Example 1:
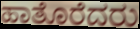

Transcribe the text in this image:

ಹಾತೊರೆದರು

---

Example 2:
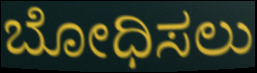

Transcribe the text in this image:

ಬೋಧಿಸಲು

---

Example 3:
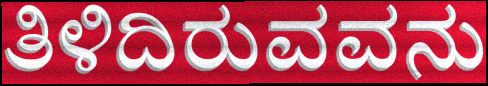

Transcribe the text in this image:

ತಿಳಿದಿರುವವನು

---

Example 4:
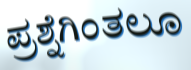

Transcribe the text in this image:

ಪ್ರಶ್ನೆಗಿಂತಲೂ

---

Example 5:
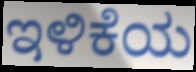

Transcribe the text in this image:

ಇಳಿಕೆಯ